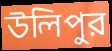
উলিপুর